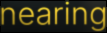
nearing